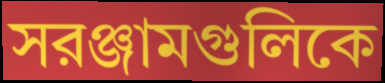
সরঞ্জামগুলিকে